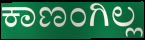
ಕಾಣಂಗಿಲ್ಲ